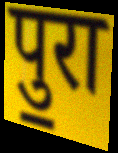
पु॒रा